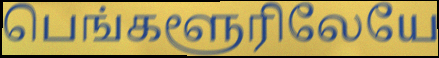
பெங்களூரிலேயே